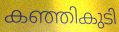
കഞ്ഞികുടി